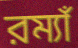
রম্যাঁ